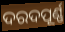
ଦରଦପୂର୍ଣ୍ଣ